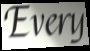
Every